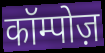
कॉम्पोज़